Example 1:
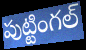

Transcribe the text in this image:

పుట్టింగల్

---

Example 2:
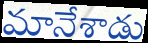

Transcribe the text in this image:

మానేశాడు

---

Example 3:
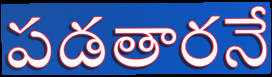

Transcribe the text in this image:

పడతారనే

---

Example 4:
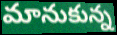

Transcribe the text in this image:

మానుకున్న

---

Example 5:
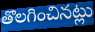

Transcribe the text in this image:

తొలగించినట్లు